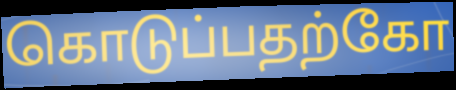
கொடுப்பதற்கோ